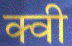
क्वी